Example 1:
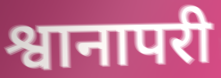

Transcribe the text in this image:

श्वानापरी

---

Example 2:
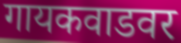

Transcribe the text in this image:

गायकवाडवर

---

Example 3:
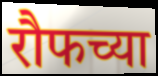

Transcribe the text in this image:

रौफच्या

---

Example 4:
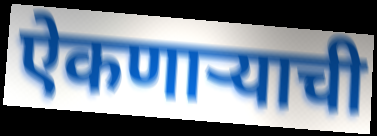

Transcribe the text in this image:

ऐकणार्‍याची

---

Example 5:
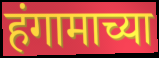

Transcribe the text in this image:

हंगामाच्या